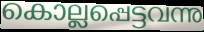
കൊല്ലപ്പെട്ടവന്നു